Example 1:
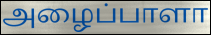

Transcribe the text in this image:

அழைப்பாளா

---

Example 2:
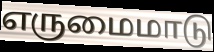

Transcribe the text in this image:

எருமைமாடு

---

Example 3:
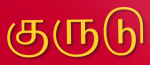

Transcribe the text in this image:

குருடு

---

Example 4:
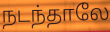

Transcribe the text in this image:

நடந்தாலே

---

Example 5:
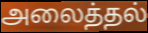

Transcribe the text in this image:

அலைத்தல்